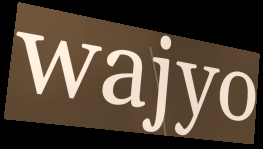
wajyo